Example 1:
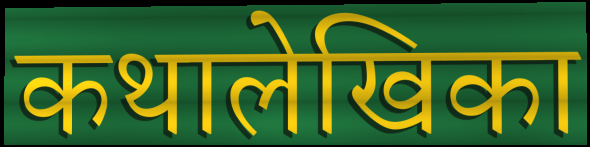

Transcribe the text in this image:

कथालेखिका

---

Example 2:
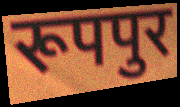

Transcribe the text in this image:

रूपपुर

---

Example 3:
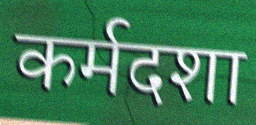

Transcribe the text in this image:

कर्मदशा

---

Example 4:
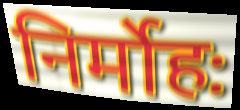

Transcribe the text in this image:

निर्मोहः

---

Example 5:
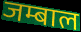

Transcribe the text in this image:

जम्बाल